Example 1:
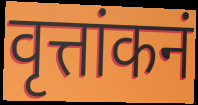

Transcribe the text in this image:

वृत्तांकनं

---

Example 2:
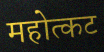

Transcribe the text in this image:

महोत्कट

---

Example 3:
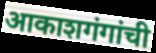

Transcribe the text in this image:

आकाशगंगांची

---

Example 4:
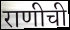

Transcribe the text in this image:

राणीची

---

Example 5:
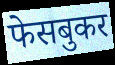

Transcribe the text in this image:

फेसबुकर